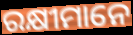
ରକ୍ଷୀମାନେ